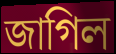
জাগিল